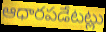
ఆధారపడేటట్లు